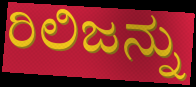
ರಿಲಿಜನ್ನು